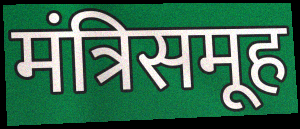
मंत्रिसमूह